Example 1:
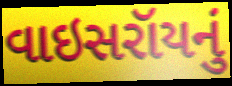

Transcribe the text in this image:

વાઇસરૉયનું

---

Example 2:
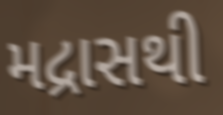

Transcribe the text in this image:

મદ્રાસથી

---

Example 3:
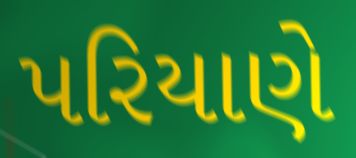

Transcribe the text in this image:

પરિયાણે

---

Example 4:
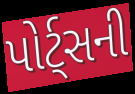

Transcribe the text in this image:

પોર્ટ્સની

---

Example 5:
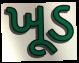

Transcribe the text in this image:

ખૂડ